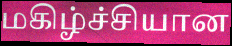
மகிழ்ச்சியான